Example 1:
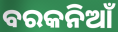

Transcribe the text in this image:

ବରକନିଆଁ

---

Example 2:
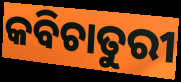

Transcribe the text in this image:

କବିଚାତୁରୀ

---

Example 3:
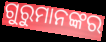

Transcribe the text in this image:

ଗୁରୁମାନଙ୍କର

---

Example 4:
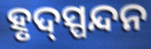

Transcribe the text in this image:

ହୃଦ୍‍ସ୍ପନ୍ଦନ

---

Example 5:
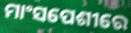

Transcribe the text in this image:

ମାଂସପେଶୀରେ